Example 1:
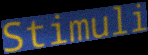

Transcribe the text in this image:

Stimuli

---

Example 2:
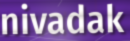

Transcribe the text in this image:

nivadak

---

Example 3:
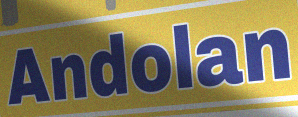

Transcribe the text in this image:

Andolan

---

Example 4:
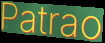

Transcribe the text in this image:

Patrao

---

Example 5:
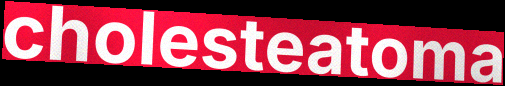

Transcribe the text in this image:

cholesteatoma